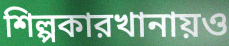
শিল্পকারখানায়ও